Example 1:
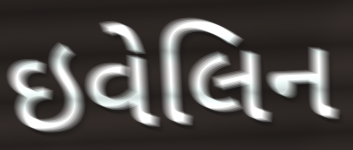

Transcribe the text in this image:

ઇવેલિન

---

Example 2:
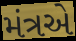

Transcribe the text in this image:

મંત્રએ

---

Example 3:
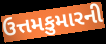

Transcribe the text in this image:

ઉત્તમકુમારની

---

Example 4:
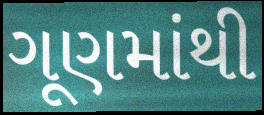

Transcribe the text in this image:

ગૂણમાંથી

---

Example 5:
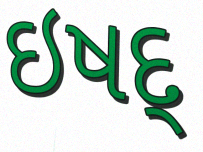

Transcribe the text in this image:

ઇષદ્